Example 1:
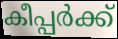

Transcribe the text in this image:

കീപ്പർക്ക്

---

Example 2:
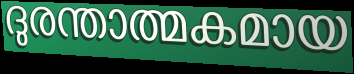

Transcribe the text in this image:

ദുരന്താത്മകമായ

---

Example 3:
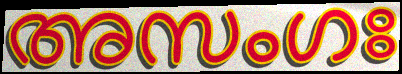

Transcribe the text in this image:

അസംഗഃ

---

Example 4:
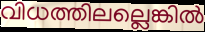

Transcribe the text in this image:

വിധത്തിലല്ലെങ്കിൽ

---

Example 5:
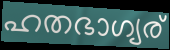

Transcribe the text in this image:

ഹതഭാഗ്യര്